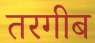
तरगीब